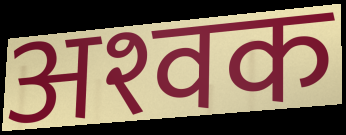
अश्वक